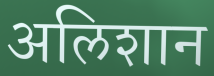
अलिशान